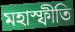
মহাস্ফীতি